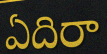
ఏదిరా